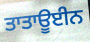
ਤਾਤਾਊਈਨ